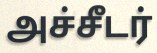
அச்சீடர்